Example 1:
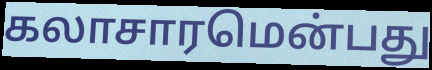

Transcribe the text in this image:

கலாசாரமென்பது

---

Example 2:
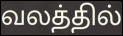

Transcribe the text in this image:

வலத்தில்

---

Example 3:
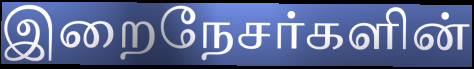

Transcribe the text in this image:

இறைநேசர்களின்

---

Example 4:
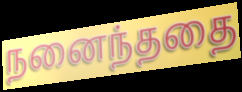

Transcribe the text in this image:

நனைந்ததை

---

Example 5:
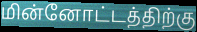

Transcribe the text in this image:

மின்னோட்டத்திற்கு